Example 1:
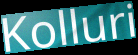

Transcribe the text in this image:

Kolluri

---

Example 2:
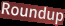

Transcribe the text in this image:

Roundup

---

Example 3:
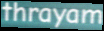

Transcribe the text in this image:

thrayam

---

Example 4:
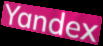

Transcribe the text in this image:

Yandex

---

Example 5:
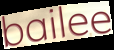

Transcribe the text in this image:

bailee